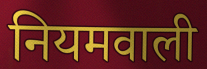
नियमवाली